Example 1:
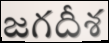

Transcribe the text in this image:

జగదీశ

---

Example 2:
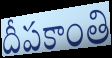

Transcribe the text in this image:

దీపకాంతి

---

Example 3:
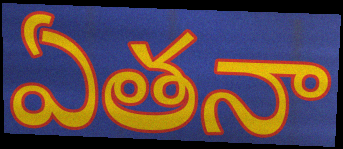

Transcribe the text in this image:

ఏతనా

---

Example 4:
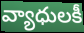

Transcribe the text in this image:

వ్యాధులకీ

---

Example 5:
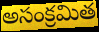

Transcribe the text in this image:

అసంక్రమిత